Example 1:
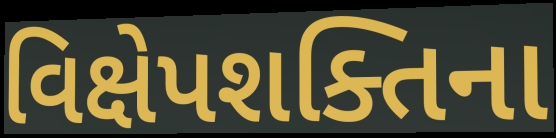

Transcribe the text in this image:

વિક્ષેપશક્તિના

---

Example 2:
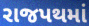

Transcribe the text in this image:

રાજપથમાં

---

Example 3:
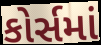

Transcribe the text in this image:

કોર્સમાં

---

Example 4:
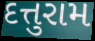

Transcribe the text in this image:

દત્તુરામ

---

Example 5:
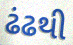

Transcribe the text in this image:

ઢંઢથી